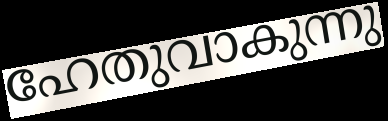
ഹേതുവാകുന്നു